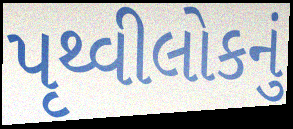
પૃથ્વીલોકનું